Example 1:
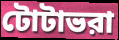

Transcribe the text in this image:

টোটাভরা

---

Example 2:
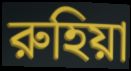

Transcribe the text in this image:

রুহিয়া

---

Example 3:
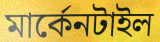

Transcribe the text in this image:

মার্কেনটাইল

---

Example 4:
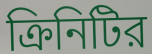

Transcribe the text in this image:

ক্রিনিটির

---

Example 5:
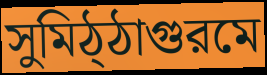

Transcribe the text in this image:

সুমিঠ্ঠাগুরমে